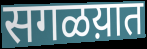
सगळय़ात